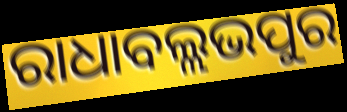
ରାଧାବଲ୍ଲଭପୁର